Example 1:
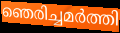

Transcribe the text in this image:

ഞെരിച്ചമർത്തി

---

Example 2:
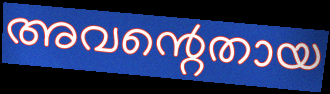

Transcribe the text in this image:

അവന്റെതായ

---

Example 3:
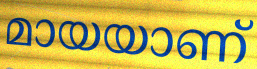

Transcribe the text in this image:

മായയാണ്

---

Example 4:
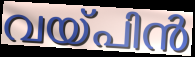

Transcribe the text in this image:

വയ്പിൻ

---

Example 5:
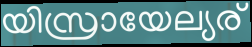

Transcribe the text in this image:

യിസ്രായേല്യര്